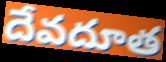
దేవదూత